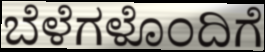
ಬೆಳೆಗಳೊಂದಿಗೆ